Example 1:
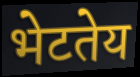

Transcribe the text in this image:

भेटतेय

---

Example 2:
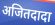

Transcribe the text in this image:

अजितदादा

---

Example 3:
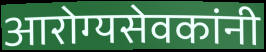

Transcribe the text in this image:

आरोग्यसेवकांनी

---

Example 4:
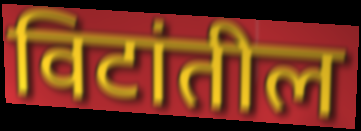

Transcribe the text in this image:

विटांतील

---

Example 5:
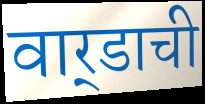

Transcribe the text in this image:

वार्डाची